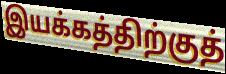
இயக்கத்திற்குத்